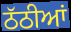
ਠੱਠੀਆਂ